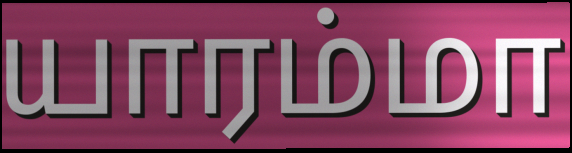
யாரம்மா